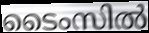
ടൈംസിൽ